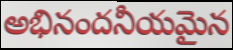
అభినందనీయమైన